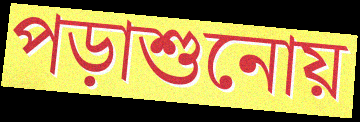
পড়াশুনোয়